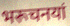
भरूचनयां